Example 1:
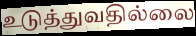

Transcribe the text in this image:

உடுத்துவதில்லை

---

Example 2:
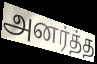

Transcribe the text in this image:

அனர்த்த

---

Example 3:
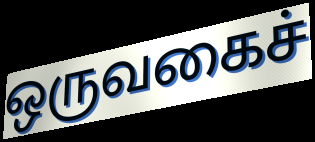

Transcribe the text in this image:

ஒருவகைச்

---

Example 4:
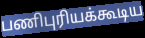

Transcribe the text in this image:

பணிபுரியக்கூடிய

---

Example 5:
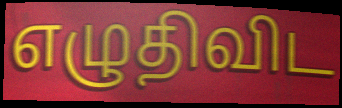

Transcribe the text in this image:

எழுதிவிட